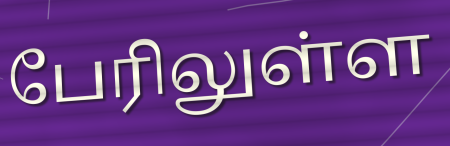
பேரிலுள்ள